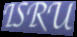
ISRU